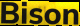
Bison